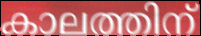
കാലത്തിന്